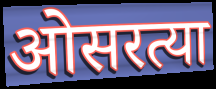
ओसरत्या